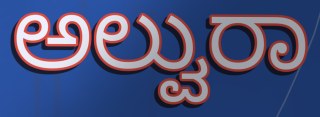
ಅಲ್ವುರಾ